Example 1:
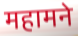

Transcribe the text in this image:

महामने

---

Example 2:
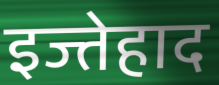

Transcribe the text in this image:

इज्तेहाद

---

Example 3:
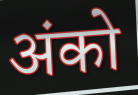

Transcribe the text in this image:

अंको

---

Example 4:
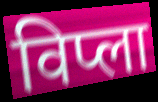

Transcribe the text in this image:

विप्ला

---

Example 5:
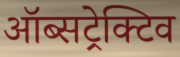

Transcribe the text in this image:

ऑब्सट्रेक्टिव